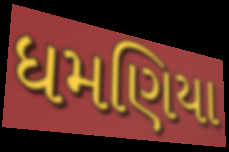
ધમણિયા